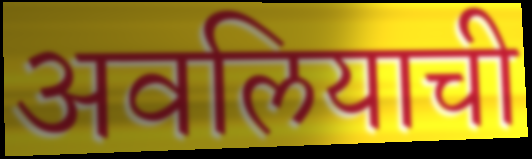
अवलियाची